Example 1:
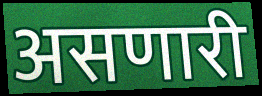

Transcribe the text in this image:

असणारी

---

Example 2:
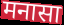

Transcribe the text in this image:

मनासा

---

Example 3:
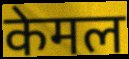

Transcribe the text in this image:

केमल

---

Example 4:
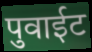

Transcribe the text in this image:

पुवाईट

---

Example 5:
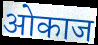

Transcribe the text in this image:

ओकाज